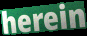
herein